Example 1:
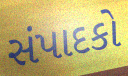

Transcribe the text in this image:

સંપાદકો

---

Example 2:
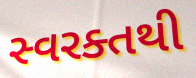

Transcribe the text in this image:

સ્વરક્તથી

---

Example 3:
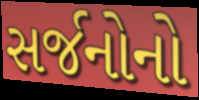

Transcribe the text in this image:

સર્જનોનો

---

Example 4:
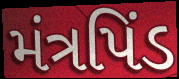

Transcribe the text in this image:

મંત્રપિંડ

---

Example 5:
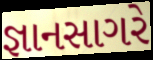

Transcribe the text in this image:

જ્ઞાનસાગરે